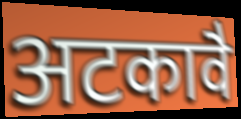
अटकावै